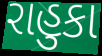
રાહુકા